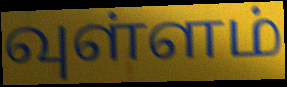
வுள்ளம்